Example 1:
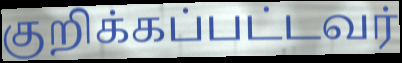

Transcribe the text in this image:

குறிக்கப்பட்டவர்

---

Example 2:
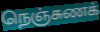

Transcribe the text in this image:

நெஞ்சுணக்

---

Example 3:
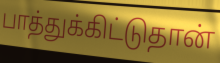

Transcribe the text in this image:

பாத்துக்கிட்டுதான்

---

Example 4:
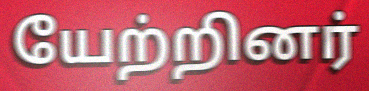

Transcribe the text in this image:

யேற்றினர்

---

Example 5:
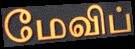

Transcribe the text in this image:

மேவிப்